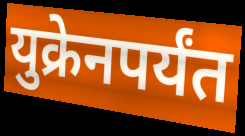
युक्रेनपर्यंत